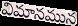
విమానమున